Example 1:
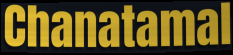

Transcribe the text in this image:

Chanatamal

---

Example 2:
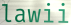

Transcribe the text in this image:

lawii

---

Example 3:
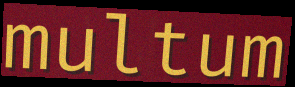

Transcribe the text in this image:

multum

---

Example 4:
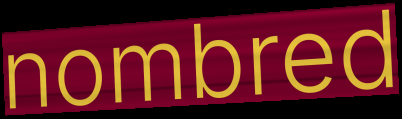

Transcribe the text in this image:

nombred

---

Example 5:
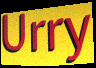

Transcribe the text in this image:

Urry